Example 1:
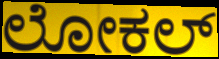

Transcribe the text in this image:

ಲೋಕಲ್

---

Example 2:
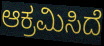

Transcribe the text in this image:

ಆಕ್ರಮಿಸಿದೆ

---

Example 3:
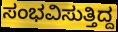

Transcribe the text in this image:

ಸಂಭವಿಸುತ್ತಿದ್ದ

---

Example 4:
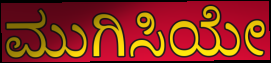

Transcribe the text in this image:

ಮುಗಿಸಿಯೇ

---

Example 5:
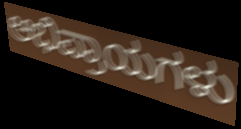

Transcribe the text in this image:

ಅಭಿಪ್ರಾಯಗಳು